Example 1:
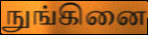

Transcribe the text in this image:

நுங்கினை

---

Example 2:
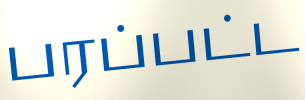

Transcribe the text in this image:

பரப்பட்ட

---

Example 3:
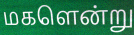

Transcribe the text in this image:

மகளென்று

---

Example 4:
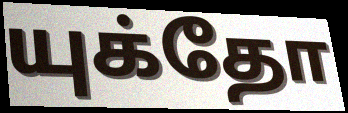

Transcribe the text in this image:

யுக்தோ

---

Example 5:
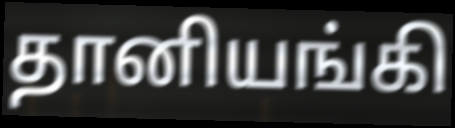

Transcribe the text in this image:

தானியங்கி